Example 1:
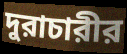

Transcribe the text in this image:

দুরাচারীর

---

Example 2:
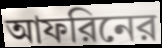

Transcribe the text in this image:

আফরিনের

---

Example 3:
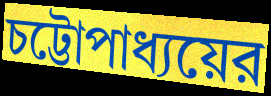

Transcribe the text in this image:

চট্টোপাধ্যয়ের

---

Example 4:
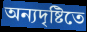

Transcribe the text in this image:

অন্যদৃষ্টিতে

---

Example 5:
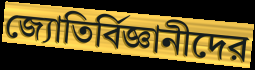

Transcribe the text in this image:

জ্যোতির্বিজ্ঞানীদের